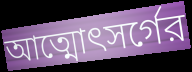
আত্মোৎসর্গের